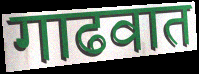
गाढवात